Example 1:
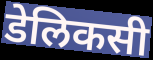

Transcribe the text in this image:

डेलिकसी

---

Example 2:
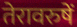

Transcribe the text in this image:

तेरावरुषें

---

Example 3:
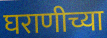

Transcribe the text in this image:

घराणीच्या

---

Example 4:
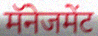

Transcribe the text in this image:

मॅनेजमेंट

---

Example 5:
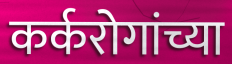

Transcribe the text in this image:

कर्करोगांच्या